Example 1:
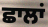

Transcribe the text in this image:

ਛਾਲਾਂ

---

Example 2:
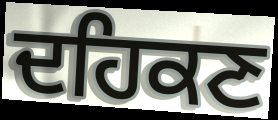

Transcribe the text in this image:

ਦਹਿਕਣ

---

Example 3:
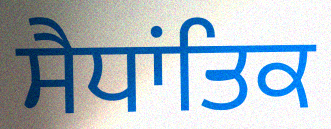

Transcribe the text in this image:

ਸੈਧਾਂਤਿਕ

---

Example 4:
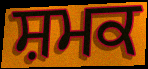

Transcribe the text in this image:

ਸ਼ਮਕ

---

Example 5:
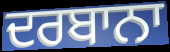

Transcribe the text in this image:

ਦਰਬਾਨਾ